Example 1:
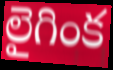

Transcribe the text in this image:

లైగింక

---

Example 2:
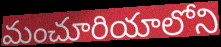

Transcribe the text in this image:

మంచూరియాలోని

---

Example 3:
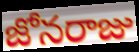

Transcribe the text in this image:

జోనరాజు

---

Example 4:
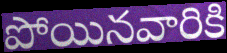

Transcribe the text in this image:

పోయినవారికి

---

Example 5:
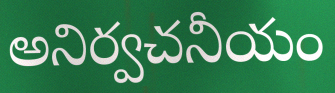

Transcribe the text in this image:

అనిర్వచనీయం